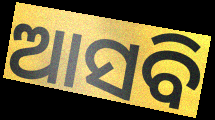
ଆସବି